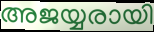
അജയ്യരായി